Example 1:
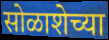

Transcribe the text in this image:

सोळाशेच्या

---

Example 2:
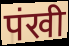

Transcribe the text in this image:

पंखी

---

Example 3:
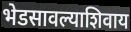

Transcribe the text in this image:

भेडसावल्याशिवाय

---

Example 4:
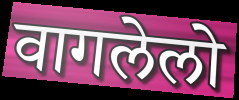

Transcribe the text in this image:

वागलेलो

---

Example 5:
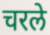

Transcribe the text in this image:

चरले